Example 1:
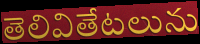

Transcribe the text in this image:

తెలివితేటలును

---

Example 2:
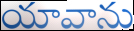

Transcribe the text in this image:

యావాను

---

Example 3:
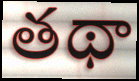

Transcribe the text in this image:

తథా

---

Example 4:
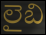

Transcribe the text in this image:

లైబి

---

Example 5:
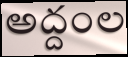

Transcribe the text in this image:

అద్దంల